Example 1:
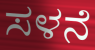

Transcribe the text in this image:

ಸಳನೆ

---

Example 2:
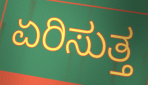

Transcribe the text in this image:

ಏರಿಸುತ್ತ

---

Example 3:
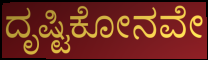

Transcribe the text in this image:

ದೃಷ್ಟಿಕೋನವೇ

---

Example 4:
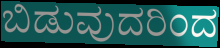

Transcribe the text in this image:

ಬಿಡುವುದರಿಂದ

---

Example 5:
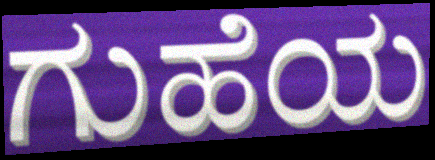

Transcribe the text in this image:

ಗುಹೆಯ